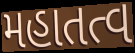
મહાતત્વ